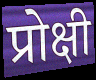
प्रोक्षी